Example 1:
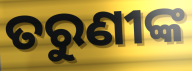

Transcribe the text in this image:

ତରୁଣୀଙ୍କ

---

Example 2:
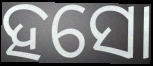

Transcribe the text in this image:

ହସୋ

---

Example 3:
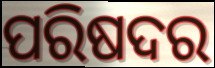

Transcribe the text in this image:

ପରିଷଦର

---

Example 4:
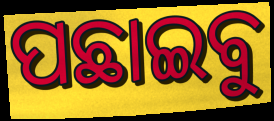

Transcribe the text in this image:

ପଛାଇବୁ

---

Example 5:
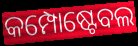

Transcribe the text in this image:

କମ୍ପୋଷ୍ଟେବଲ